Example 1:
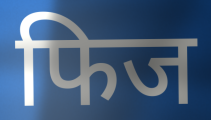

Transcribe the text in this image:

फिज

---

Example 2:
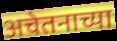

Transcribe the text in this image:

अचेतनाच्या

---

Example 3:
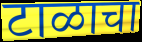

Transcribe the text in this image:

टाळाचा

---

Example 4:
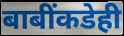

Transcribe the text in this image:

बाबींकडेही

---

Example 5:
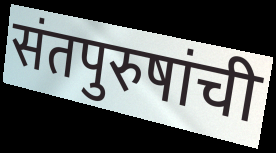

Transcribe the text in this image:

संतपुरुषांची